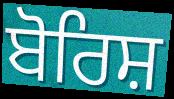
ਬੋਰਿਸ਼